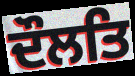
ਦੌਲਤਿ